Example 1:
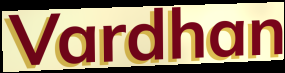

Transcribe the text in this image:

Vardhan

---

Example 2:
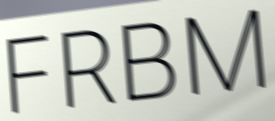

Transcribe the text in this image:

FRBM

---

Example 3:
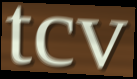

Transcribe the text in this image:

tcv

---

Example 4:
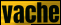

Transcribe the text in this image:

vache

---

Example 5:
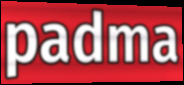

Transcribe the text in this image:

padma